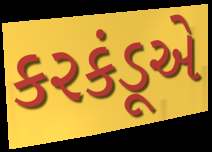
કરકંડૂએ